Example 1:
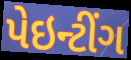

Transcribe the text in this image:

પેઇન્ટીંગ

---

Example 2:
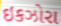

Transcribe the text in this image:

ઇકઝોરા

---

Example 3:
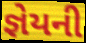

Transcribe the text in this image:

જ્ઞેયની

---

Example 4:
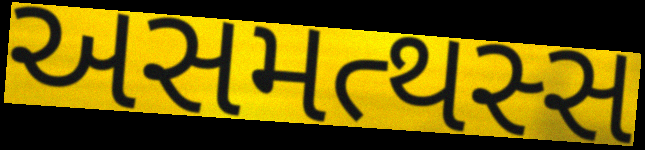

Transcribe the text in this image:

અસમત્થસ્સ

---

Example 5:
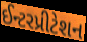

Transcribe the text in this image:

ઈન્ટરપ્રીટેશન